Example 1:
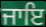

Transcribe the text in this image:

ਜਾਇ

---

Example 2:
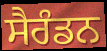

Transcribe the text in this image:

ਸੈਰੰਡਨ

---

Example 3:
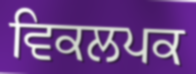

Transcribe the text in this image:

ਵਿਕਲਪਕ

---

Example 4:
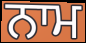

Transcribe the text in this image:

ਨਾਮ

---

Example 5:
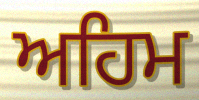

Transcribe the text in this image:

ਅਹਿਮ